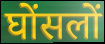
घोंसलों